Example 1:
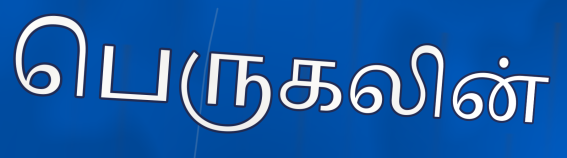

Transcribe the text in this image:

பெருகலின்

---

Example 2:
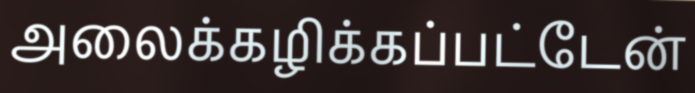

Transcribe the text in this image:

அலைக்கழிக்கப்பட்டேன்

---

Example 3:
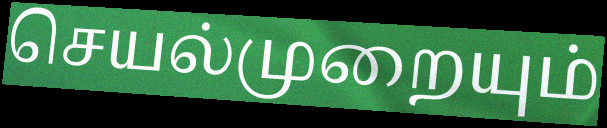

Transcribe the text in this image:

செயல்முறையும்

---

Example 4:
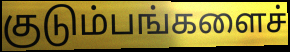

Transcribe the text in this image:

குடும்பங்களைச்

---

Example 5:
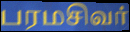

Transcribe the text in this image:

பரமசிவர்